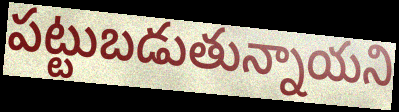
పట్టుబడుతున్నాయని